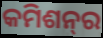
କମିଶନ୍‌ର